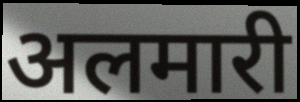
अलमारी